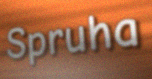
Spruha